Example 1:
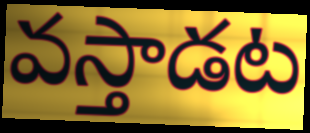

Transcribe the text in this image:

వస్తాడట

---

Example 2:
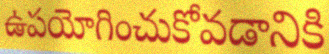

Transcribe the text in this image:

ఉపయోగించుకోవడానికి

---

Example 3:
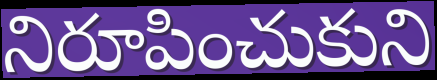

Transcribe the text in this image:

నిరూపించుకుని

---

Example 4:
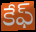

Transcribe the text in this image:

కేఫ్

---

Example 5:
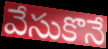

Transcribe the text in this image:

వేసుకొనే